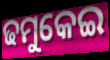
ଢମୁକେଇ